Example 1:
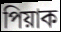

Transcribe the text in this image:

পিয়াক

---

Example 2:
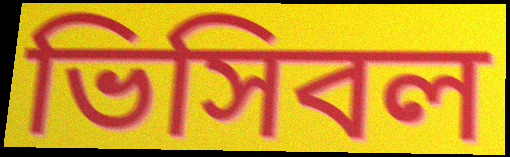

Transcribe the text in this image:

ভিসিবল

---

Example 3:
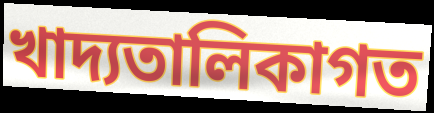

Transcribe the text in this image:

খাদ্যতালিকাগত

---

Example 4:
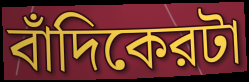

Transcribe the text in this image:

বাঁদিকেরটা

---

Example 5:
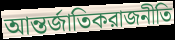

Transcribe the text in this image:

আন্তর্জাতিকরাজনীতি